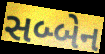
સબ્બેન